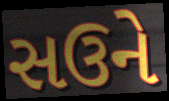
સઉને